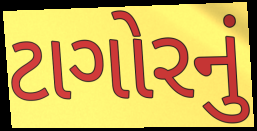
ટાગોરનું